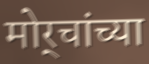
मोर्चांच्या